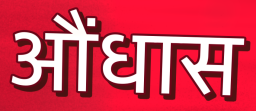
औंधास